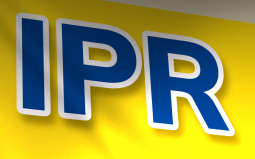
IPR